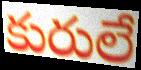
కురులే